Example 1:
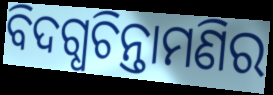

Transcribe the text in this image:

ବିଦଗ୍ଧଚିନ୍ତାମଣିର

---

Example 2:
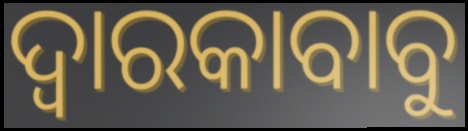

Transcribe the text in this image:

ଦ୍ୱାରକାବାବୁ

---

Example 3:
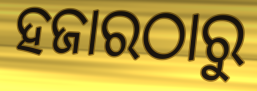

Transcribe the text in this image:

ହଜାରଠାରୁ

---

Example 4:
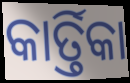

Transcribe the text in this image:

କାର୍ତ୍ତିକା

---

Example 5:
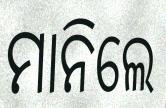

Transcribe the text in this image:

ମାନିଲେ